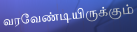
வரவேண்டியிருக்கும்